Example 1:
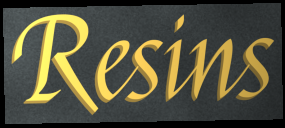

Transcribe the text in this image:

Resins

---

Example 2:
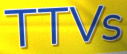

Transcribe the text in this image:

TTVs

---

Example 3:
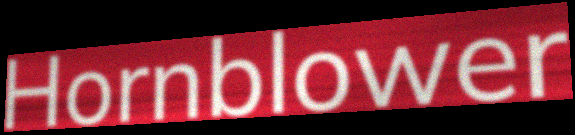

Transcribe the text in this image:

Hornblower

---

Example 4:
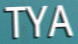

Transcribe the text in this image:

TYA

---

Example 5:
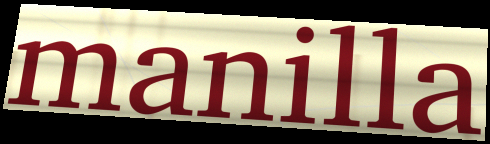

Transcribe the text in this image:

manilla